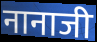
नानाजी